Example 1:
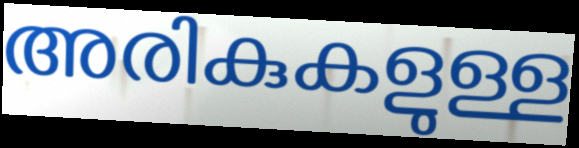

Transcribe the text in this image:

അരികുകളുള്ള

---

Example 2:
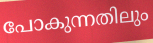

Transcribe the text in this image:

പോകുന്നതിലും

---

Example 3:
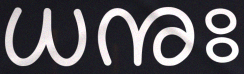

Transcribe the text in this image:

ധനുഃ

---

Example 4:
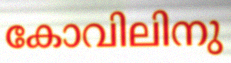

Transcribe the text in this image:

കോവിലിനു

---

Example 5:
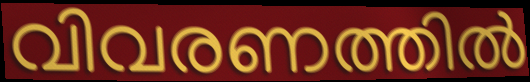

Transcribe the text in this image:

വിവരണത്തിൽ